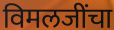
विमलजींचा